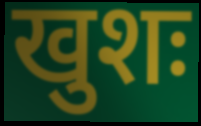
खुशः